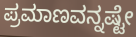
ಪ್ರಮಾಣವನ್ನಷ್ಟೇ